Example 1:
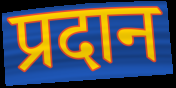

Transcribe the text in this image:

प्रदान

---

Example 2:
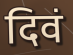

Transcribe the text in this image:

दिवं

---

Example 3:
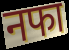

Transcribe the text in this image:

नफा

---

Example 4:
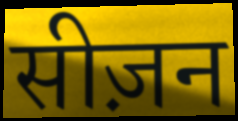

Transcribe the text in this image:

सीज़न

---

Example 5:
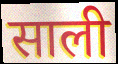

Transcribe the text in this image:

साली